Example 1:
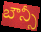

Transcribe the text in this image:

బౌన్సీ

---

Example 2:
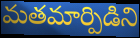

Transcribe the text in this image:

మతమార్పిడిని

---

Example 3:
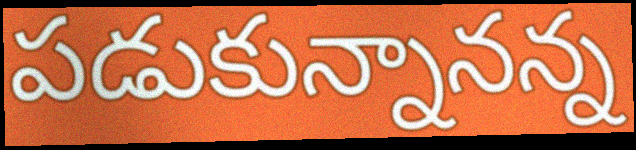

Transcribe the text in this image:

పడుకున్నానన్న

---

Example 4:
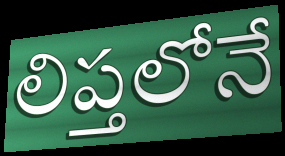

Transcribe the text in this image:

లిప్తలోనే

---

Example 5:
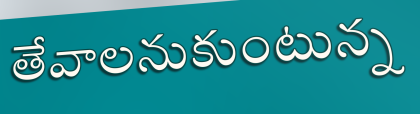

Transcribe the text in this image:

తేవాలనుకుంటున్న